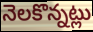
నెలకొన్నట్లు